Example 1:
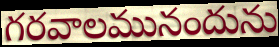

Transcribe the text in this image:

గరవాలమునందును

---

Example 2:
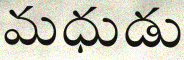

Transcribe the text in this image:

మధుడు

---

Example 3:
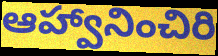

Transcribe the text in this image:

ఆహ్వానించిరి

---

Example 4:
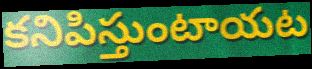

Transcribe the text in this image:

కనిపిస్తుంటాయట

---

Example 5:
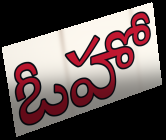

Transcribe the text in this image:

ఓహో